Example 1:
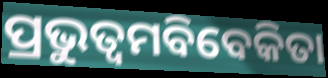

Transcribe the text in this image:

ପ୍ରଭୁତ୍ୱମବିବେକିତା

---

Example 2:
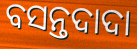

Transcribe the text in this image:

ବସନ୍ତଦାଦା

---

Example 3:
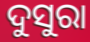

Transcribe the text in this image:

ଦୁସୁରା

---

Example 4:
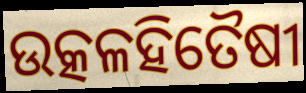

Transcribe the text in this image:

ଉତ୍କଳହିତୈଷୀ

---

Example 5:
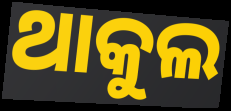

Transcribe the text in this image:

ଥାକୁଲ